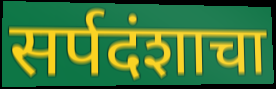
सर्पदंशाचा